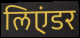
लिएंडर